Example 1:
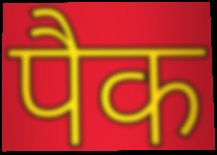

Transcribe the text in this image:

पैक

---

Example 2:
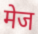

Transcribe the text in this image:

मेज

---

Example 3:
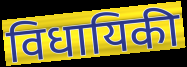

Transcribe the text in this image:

विधायिकी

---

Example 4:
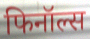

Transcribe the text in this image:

फिनॉल्स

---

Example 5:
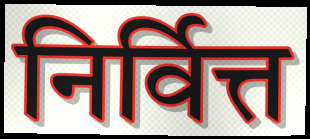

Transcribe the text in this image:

निर्वित्त